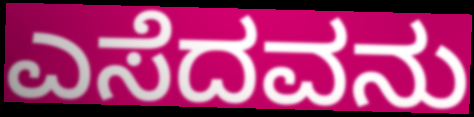
ಎಸೆದವನು